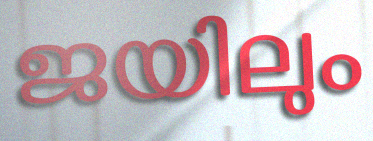
ജയിലും